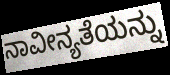
ನಾವೀನ್ಯತೆಯನ್ನು